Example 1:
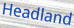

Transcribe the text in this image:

Headland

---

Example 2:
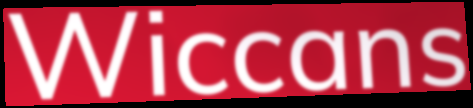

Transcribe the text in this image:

Wiccans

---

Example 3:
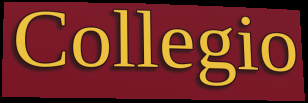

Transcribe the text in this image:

Collegio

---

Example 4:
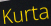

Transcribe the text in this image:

Kurta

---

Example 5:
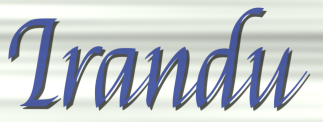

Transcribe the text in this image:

Irandu